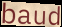
baud